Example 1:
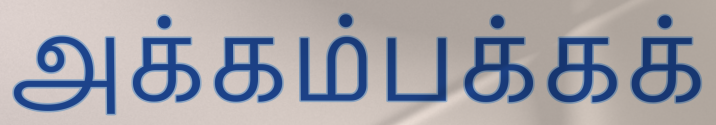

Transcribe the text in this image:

அக்கம்பக்கக்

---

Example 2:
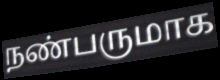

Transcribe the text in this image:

நண்பருமாக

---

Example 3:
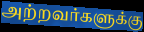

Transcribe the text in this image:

அற்றவர்களுக்கு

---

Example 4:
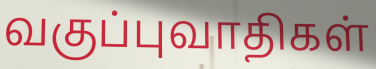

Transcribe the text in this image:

வகுப்புவாதிகள்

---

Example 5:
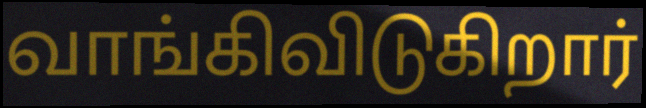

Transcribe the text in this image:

வாங்கிவிடுகிறார்